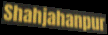
Shahjahanpur